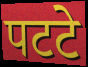
पटटे